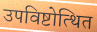
उपविष्टोत्थित